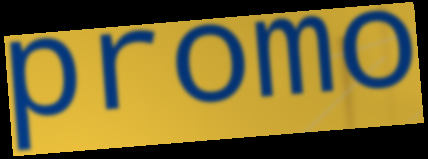
promo